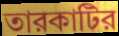
তারকাটির